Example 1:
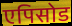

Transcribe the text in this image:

एपिसोड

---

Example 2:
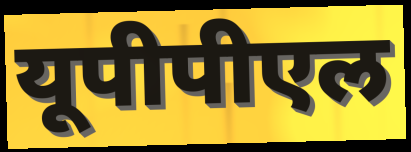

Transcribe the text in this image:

यूपीपीएल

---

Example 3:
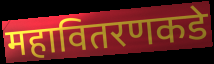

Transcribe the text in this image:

महावितरणकडे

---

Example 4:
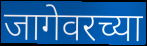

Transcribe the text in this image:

जागेवरच्या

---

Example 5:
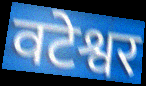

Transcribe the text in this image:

वटेश्वर